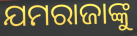
ଯମରାଜାଙ୍କୁ